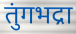
तुंगभद्रा